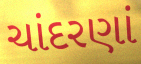
ચાંદરણાં